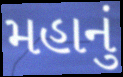
મહાનું